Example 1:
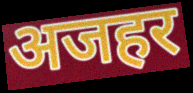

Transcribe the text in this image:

अजहर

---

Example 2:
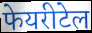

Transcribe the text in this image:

फेयरीटेल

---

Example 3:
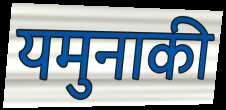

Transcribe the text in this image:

यमुनाकी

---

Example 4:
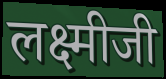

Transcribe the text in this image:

लक्ष्मीजी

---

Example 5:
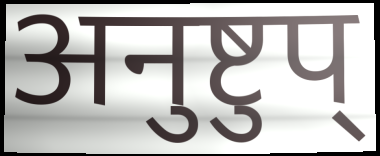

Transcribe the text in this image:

अनुष्टुप्